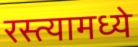
रस्त्यामध्ये